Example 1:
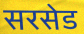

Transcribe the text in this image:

सरसेड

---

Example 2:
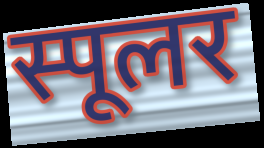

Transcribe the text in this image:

स्पूलर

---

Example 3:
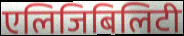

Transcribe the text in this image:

एलिजिबिलिटी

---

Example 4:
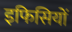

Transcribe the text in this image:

इफिसियों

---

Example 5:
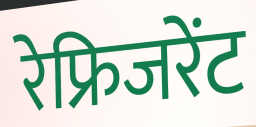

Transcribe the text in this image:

रेफ्रिजरेंट